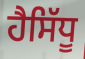
ਹੈਸਿੱਧੂ